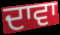
ਦਾਵਾ